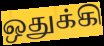
ஒதுக்கி